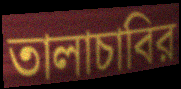
তালাচাবির